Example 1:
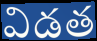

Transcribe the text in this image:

విడత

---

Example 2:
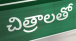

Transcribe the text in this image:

చిత్రాలతో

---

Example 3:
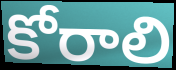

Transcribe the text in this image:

కోరాలి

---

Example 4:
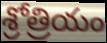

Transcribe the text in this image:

శ్రోత్రియం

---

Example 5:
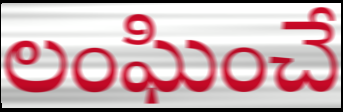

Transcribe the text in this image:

లంఘించే